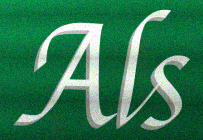
Als